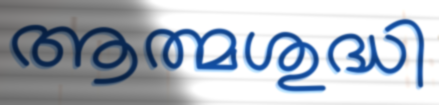
ആത്മശുദ്ധി